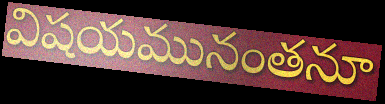
విషయమునంతనూ